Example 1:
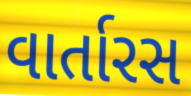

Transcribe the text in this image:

વાર્તારસ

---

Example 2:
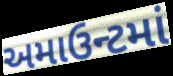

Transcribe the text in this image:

અમાઉન્ટમાં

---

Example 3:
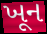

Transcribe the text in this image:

ખૂન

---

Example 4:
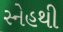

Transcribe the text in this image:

સ્નેહથી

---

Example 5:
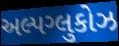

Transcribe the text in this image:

અલ્પગ્લુકોઝ